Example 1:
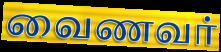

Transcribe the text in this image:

வைணவர்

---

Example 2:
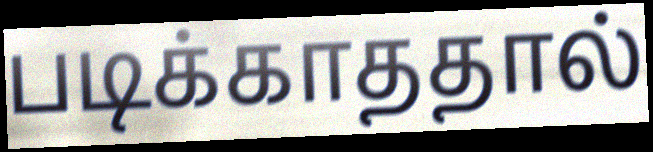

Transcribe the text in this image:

படிக்காததால்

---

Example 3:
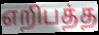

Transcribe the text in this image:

எறிபத்த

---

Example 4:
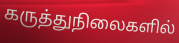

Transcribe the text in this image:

கருத்துநிலைகளில்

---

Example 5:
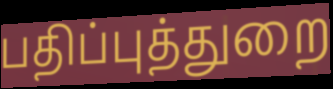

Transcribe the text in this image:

பதிப்புத்துறை